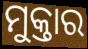
ମୁକ୍ତାର